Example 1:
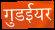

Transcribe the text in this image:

गुडईयर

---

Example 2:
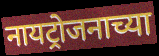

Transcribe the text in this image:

नायट्रोजनाच्या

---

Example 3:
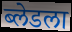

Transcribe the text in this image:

ब्लेडला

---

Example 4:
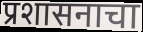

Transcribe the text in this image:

प्रशासनाचा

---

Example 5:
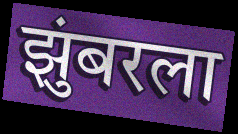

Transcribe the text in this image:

झुंबरला